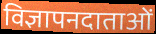
विज्ञापनदाताओं